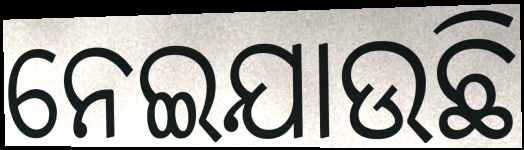
ନେଇଯାଉଛି